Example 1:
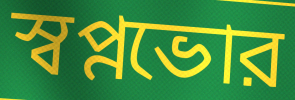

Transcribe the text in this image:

স্বপ্নভোর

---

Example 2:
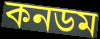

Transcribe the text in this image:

কনডম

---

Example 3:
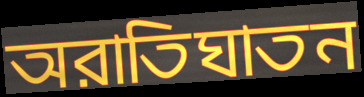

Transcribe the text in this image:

অরাতিঘাতন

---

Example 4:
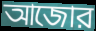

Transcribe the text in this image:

আজোর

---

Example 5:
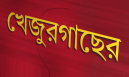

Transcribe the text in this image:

খেজুরগাছের